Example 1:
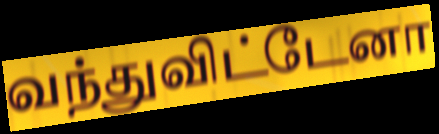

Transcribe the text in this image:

வந்துவிட்டேனா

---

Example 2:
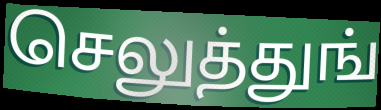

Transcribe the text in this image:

செலுத்துங்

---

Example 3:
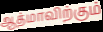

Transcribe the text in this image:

ஆத்மாவிற்கும்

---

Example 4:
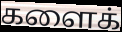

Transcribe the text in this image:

களைக்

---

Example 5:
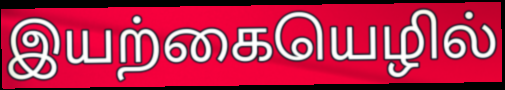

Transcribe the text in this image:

இயற்கையெழில்